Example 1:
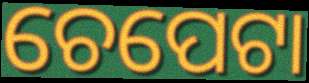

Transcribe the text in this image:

ଚେପେଟା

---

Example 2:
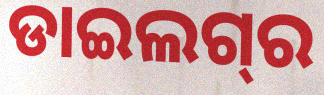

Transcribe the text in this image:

ଡାଇଲଗ୍‌ର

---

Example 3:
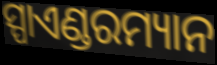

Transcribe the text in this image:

ସ୍ପାଏଣ୍ଡରମ୍ୟାନ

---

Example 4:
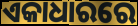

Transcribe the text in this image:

ଏକାଧାରରେ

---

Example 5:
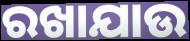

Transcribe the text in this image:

ରଖାଯାଉ